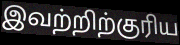
இவற்றிற்குரிய